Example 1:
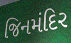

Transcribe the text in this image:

જિનમંદિર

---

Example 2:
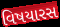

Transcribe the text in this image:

વિષયારસ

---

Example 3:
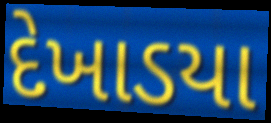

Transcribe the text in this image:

દેખાડયા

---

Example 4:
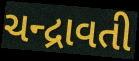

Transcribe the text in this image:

ચન્દ્રાવતી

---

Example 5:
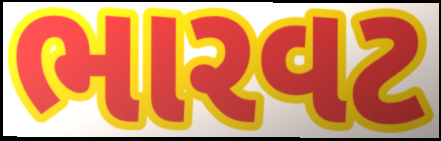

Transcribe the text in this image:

ભારવટ